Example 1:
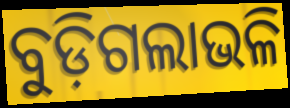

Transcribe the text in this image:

ବୁଡ଼ିଗଲାଭଳି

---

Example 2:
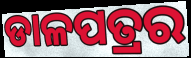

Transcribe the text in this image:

ଡାଳପତ୍ରର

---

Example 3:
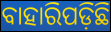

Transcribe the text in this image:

ବାହାରିପଡ଼ିଛି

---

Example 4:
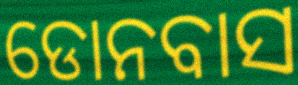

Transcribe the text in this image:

ଡୋନବାସ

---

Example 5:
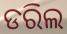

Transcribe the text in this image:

ଡରିଲ